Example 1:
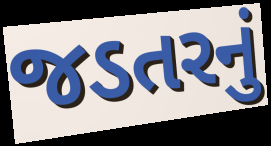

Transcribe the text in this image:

જડતરનું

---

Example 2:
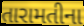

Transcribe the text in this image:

તારામતીના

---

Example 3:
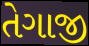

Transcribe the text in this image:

તેગાજી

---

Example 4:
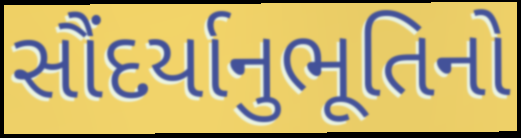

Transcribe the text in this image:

સૌંદર્યાનુભૂતિનો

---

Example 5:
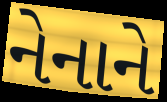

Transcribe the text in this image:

નેનાને